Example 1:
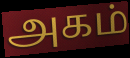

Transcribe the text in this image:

அகம்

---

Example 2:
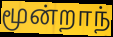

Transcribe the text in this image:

மூன்றாந்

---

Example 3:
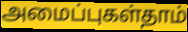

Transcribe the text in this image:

அமைப்புகள்தாம்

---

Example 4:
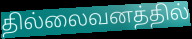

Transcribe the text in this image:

தில்லைவனத்தில்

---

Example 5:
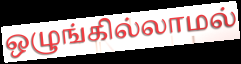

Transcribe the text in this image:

ஒழுங்கில்லாமல்